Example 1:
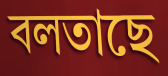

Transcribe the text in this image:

বলতাছে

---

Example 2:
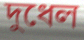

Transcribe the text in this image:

দুধেল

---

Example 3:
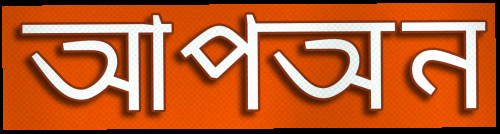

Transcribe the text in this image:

আপঅন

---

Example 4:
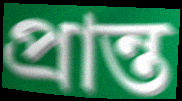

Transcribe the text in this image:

প্রান্ত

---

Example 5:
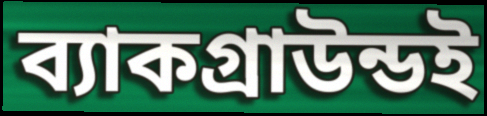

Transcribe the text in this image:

ব্যাকগ্রাউন্ডই